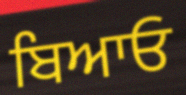
ਬਿਆਓ